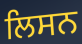
ਲਿਸਨ